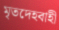
মৃতদেহবাহী